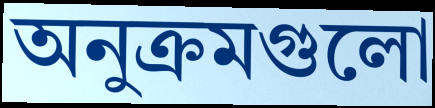
অনুক্রমগুলো